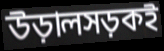
উড়ালসড়কই